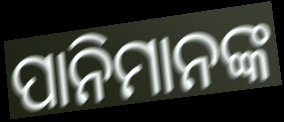
ପାନିମାନଙ୍କ